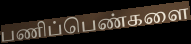
பணிப்பெண்களை